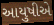
આયુષીએ